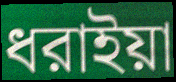
ধরাইয়া